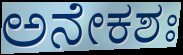
ಅನೇಕಶಃ